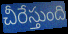
చీరేస్తుంది